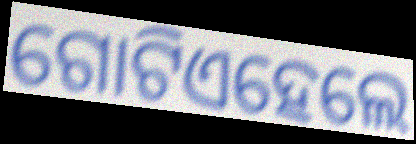
ଗୋଟିଏହେଲେ